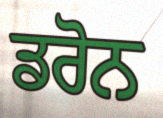
ਡਰੋਨ